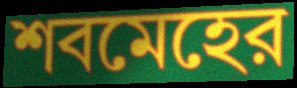
শবমেহের